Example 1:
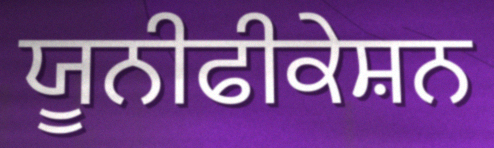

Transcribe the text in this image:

ਯੂਨੀਫੀਕੇਸ਼ਨ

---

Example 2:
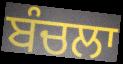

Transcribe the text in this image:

ਬੰਚਲਾ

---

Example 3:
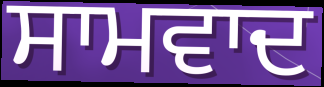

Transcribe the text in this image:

ਸਾਮਵਾਦ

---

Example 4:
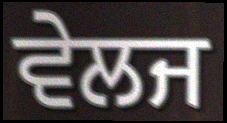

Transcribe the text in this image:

ਵੇਲਜ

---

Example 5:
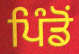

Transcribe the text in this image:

ਪਿੰਡੋਂ